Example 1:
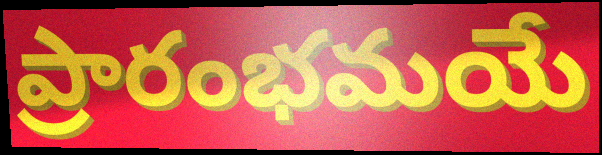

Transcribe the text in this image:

ప్రారంభమయే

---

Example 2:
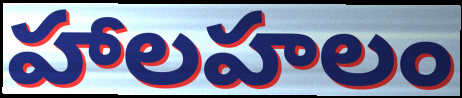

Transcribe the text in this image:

హాలహలం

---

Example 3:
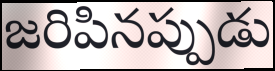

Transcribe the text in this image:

జరిపినప్పుడు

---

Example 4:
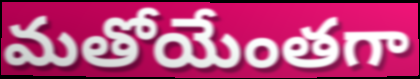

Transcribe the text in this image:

మతోయేంతగా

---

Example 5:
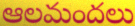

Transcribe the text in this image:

ఆలమందలు